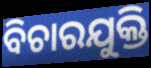
ବିଚାରଯୁକ୍ତି